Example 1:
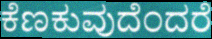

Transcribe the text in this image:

ಕೆಣಕುವುದೆಂದರೆ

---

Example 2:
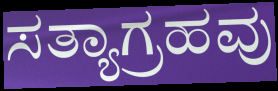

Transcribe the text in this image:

ಸತ್ಯಾಗ್ರಹವು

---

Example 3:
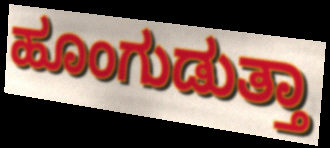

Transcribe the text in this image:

ಹೂಂಗುಡುತ್ತಾ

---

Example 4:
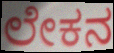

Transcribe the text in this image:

ಲೇಕನ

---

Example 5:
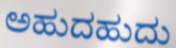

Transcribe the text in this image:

ಅಹುದಹುದು